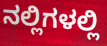
ನಲ್ಲಿಗಳಲ್ಲಿ